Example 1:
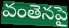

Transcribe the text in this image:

వంతెనపై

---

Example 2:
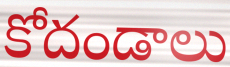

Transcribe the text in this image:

కోదండాలు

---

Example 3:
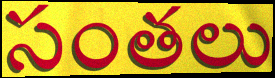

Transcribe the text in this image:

సంతలు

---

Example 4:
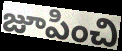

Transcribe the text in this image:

జూపించి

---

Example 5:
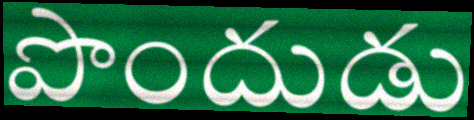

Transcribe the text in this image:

పొందుడు